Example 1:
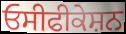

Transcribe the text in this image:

ਓਸੀਫੀਕੇਸ਼ਨ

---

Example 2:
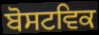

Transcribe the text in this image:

ਬੋਸਟਵਿਕ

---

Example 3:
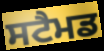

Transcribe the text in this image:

ਸਟੈਮਡ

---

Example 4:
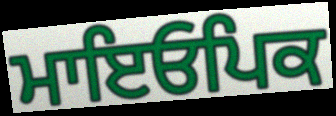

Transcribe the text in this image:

ਮਾਇਓਪਿਕ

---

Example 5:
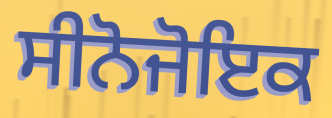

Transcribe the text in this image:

ਸੀਨੋਜੋਇਕ